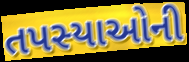
તપસ્યાઓની